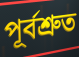
পূর্বশ্রুত